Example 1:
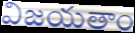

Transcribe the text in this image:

విజయతాం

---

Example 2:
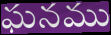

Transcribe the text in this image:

ఘనము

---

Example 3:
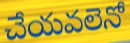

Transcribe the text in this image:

చేయవలెనో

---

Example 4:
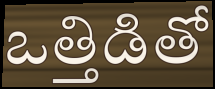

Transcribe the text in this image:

ఒత్తిడితో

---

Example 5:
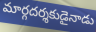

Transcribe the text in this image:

మార్గదర్శకుడైనాడు